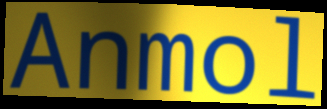
Anmol